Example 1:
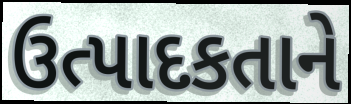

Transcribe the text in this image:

ઉત્પાદકતાને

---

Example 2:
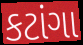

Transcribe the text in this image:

કટાંગા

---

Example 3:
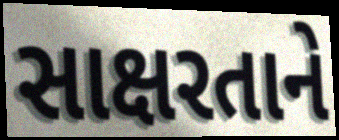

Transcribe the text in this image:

સાક્ષરતાને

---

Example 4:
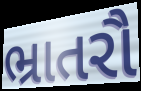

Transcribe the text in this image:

ભ્રાતરૌ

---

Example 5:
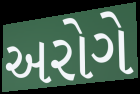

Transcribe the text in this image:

અરોગે